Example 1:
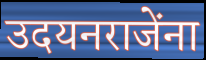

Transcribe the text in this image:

उदयनराजेंना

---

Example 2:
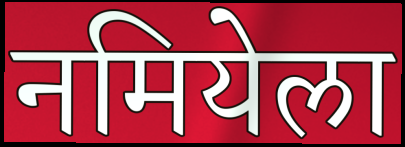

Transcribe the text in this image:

नमियेला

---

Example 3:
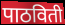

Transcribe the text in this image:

पाठविती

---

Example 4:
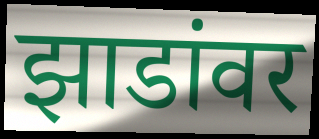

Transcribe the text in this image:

झाडांवर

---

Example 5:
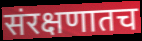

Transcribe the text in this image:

संरक्षणातच